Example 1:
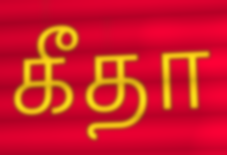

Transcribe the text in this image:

கீதா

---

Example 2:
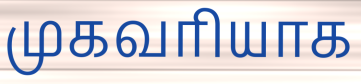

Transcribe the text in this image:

முகவரியாக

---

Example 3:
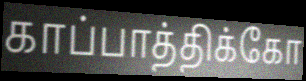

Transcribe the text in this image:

காப்பாத்திக்கோ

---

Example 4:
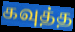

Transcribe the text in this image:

கவுத்த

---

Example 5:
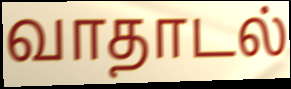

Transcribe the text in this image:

வாதாடல்